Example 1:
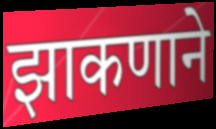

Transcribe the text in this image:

झाकणाने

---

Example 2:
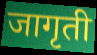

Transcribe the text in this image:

जागृती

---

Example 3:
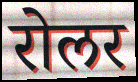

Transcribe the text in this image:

रोलर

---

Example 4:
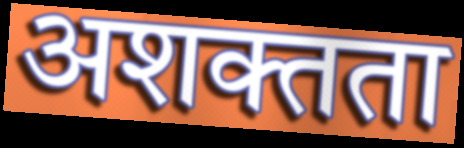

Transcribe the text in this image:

अशक्‍तता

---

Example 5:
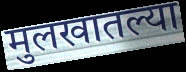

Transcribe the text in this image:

मुलखातल्या